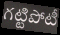
గట్టిపోటీ